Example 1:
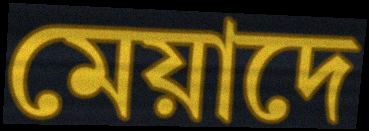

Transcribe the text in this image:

মেয়াদে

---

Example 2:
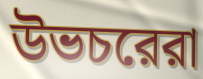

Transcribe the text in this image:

উভচরেরা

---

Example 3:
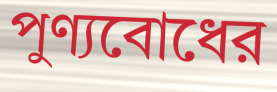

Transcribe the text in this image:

পুণ্যবোধের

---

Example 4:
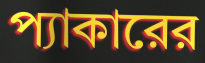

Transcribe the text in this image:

প্যাকারের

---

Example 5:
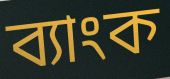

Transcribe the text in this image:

ব্যাংক